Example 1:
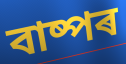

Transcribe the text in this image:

বাষ্পৰ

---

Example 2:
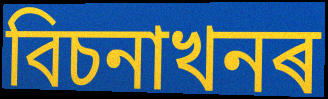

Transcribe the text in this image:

বিচনাখনৰ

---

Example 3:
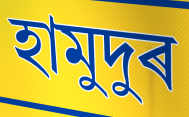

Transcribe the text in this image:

হামুদুৰ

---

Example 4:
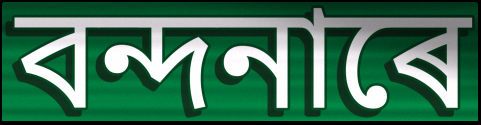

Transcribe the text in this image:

বন্দনাৰে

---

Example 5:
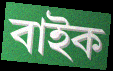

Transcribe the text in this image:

বাইক